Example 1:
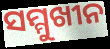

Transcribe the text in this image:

ସମ୍ମୁଖୀନ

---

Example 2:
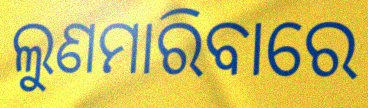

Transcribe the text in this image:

ଲୁଣମାରିବାରେ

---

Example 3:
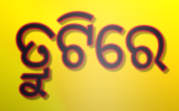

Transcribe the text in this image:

ତ୍ରୁଟିରେ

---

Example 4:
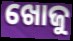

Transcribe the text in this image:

ଖୋଜୁ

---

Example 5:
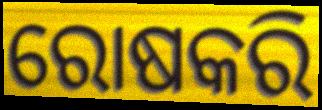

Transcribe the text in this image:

ରୋଷକରି